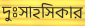
দুঃসাহসিকার